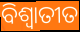
ବିଶ୍ୱାତୀତ